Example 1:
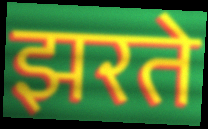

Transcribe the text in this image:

झरते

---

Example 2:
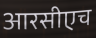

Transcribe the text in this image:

आरसीएच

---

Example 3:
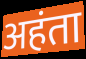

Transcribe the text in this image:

अहंता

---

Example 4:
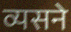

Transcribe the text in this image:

व्यसने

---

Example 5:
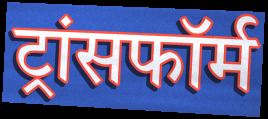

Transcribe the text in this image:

ट्रांसफॉर्म